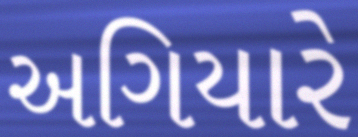
અગિયારે